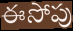
ఈసోపు